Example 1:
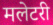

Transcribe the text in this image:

मलेटरी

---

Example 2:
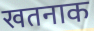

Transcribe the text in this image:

खतनाक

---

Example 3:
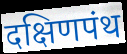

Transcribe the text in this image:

दक्षिणपंथ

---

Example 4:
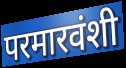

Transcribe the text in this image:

परमारवंशी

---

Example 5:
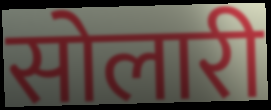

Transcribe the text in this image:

सोलारी